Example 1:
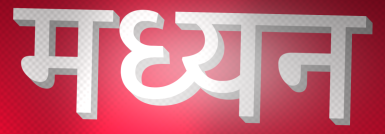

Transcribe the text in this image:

मध्यन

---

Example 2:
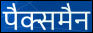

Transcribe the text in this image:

पैक्समैन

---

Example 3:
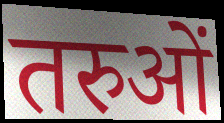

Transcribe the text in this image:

तरुओं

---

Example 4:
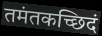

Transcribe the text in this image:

तमंतकच्छिदं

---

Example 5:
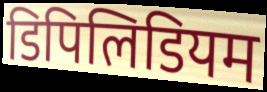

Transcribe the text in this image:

डिपिलिडियम